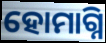
ହୋମାଗ୍ନି